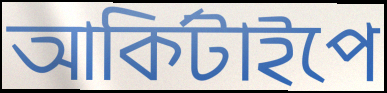
আর্কিটাইপে